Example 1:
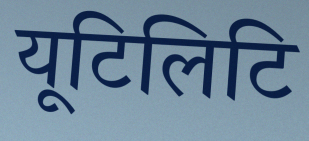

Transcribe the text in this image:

यूटिलिटि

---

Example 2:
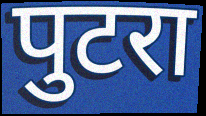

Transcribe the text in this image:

पुटरा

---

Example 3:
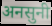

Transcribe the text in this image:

अनसुनी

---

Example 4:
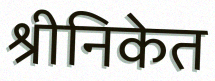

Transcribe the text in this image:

श्रीनिकेत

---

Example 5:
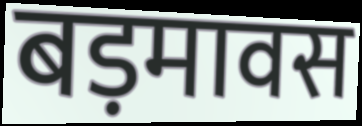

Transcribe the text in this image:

बड़मावस